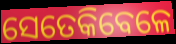
ସେତେକିବେଳେ